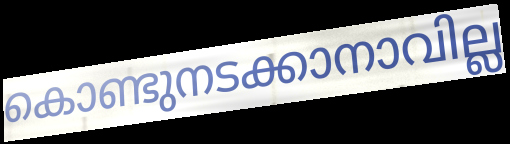
കൊണ്ടുനടക്കാനാവില്ല